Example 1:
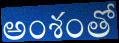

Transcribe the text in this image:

అంశంతో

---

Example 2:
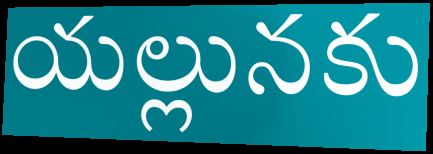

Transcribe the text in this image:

యల్లునకు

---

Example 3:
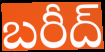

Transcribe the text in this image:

బరీద్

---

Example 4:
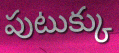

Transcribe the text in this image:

పుటుక్కు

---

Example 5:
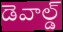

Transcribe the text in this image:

డెవాల్డ్